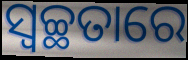
ସ୍ବଚ୍ଛତାରେ